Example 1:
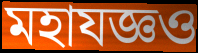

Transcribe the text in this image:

মহাযজ্ঞও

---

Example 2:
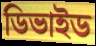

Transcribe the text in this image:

ডিভাইড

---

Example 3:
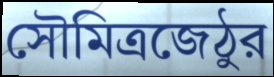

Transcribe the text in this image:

সৌমিত্রজেঠুর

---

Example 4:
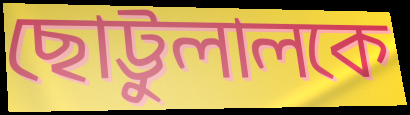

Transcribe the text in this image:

ছোট্টুলালকে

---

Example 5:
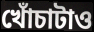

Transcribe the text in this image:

খোঁচাটাও